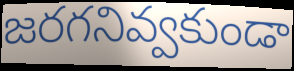
జరగనివ్వకుండా